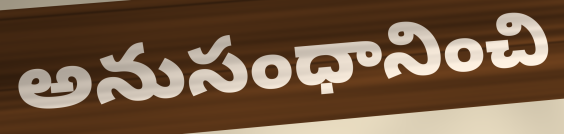
అనుసంధానించి